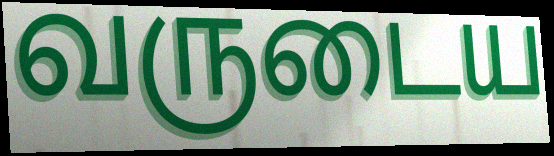
வருடைய